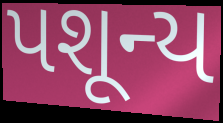
પશૂન્ય